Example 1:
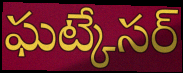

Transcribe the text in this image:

ఘట్కేసర్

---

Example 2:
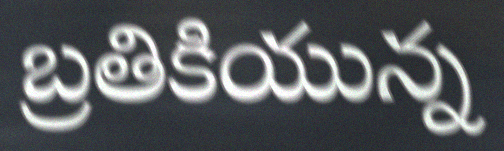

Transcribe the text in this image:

బ్రతికియున్న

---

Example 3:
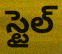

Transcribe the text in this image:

స్టైల్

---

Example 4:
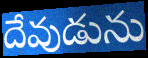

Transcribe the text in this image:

దేవుడును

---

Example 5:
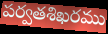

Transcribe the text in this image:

పర్వతశిఖరము